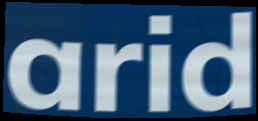
arid